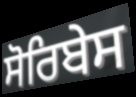
ਸੋਰਿਬੇਸ